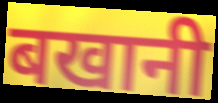
बखानी